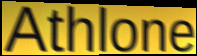
Athlone